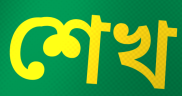
শেখ